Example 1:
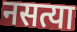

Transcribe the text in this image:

नसत्या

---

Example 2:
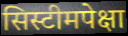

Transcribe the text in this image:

सिस्टीमपेक्षा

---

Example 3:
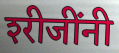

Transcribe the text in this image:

श्रीजींनी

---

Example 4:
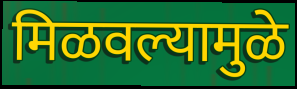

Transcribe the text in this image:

मिळवल्यामुळे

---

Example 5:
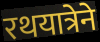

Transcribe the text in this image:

रथयात्रेने